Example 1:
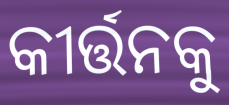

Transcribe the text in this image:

କୀର୍ତ୍ତନକୁ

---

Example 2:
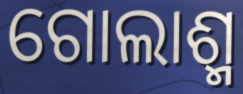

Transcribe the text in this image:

ଗୋଲାଶ୍ମ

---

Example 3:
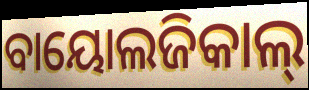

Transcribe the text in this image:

ବାୟୋଲଜିକାଲ୍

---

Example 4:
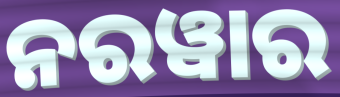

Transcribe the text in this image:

ନରୱାର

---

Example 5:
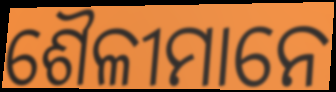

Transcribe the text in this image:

ଶୈଳୀମାନେ